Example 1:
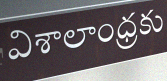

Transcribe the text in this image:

విశాలాంధ్రకు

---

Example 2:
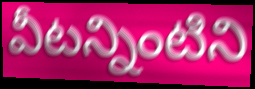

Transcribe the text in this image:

వీటన్నింటిని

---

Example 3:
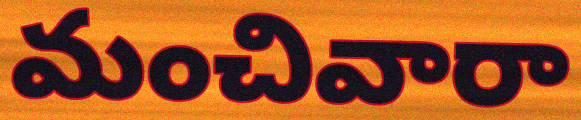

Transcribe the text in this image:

మంచివారా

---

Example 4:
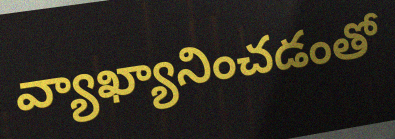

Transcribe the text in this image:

వ్యాఖ్యానించడంతో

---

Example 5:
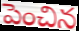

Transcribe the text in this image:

పెంచిన